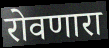
रोवणारा